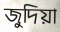
জুদিয়া